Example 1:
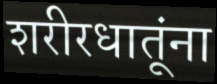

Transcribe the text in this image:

शरीरधातूंना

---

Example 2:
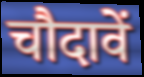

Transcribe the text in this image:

चौदावें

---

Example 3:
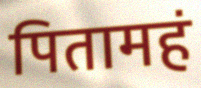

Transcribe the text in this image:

पितामहं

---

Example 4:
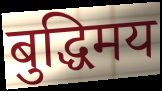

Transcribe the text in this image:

बुद्धिमय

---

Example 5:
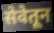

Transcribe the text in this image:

सेवेतून